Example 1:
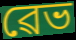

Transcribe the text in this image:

ৱেভ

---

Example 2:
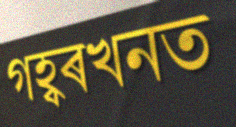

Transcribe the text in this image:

গহ্বৰখনত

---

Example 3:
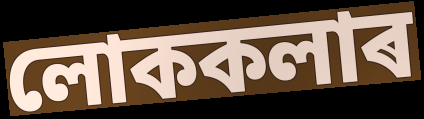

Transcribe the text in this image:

লোককলাৰ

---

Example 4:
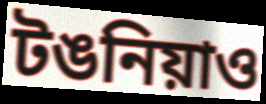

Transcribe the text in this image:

টঙনিয়াও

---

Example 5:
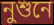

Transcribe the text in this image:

নুশুনে